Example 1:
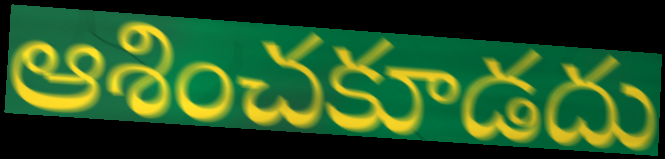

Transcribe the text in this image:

ఆశించకూడదు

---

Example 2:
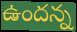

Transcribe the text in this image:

ఉందన్న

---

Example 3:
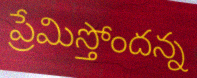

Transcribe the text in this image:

ప్రేమిస్తోందన్న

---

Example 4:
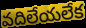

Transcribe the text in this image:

వదిలేయలేక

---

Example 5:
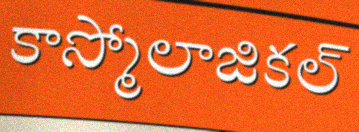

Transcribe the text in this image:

కాస్మోలాజికల్